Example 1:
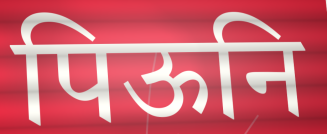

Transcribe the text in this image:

पिऊनि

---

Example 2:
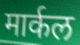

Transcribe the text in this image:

मार्कल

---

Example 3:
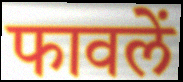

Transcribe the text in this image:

फावलें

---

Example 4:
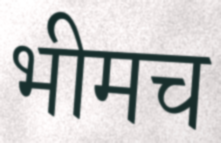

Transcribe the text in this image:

भीमच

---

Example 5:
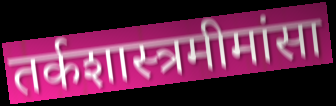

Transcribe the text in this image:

तर्कशास्त्रमीमांसा